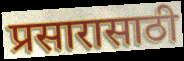
प्रसारासाठी